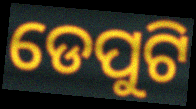
ଡେପୁଟି